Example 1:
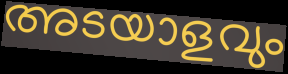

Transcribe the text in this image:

അടയാളവും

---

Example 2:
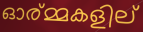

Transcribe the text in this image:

ഓര്മ്മകളില്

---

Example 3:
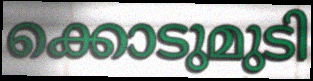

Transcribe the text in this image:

ക്കൊടുമുടി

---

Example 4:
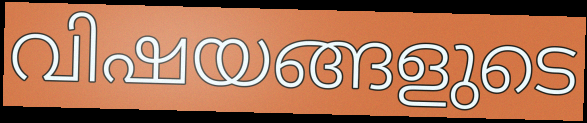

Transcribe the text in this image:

വിഷയങ്ങളുടെ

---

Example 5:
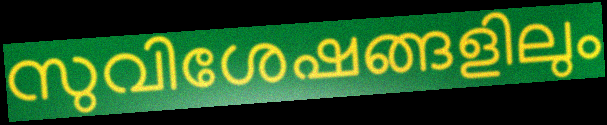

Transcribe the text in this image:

സുവിശേഷങ്ങളിലും